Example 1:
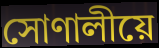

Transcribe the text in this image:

সোণালীয়ে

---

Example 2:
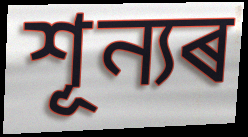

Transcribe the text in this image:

শূন্যৰ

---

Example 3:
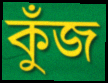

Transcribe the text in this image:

কুঁজ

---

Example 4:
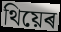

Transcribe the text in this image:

থিয়েৰ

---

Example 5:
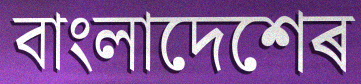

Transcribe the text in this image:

বাংলাদেশেৰ